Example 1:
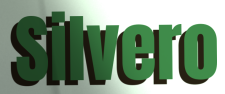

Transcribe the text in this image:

Silvero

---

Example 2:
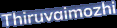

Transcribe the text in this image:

Thiruvaimozhi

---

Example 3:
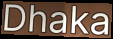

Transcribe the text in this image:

Dhaka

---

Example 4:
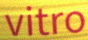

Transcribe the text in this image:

vitro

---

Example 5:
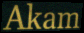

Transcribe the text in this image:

Akam